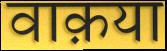
वाक़या